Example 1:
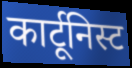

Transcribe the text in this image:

कार्टूनिस्ट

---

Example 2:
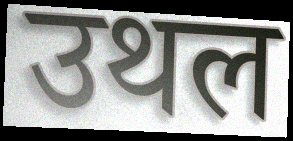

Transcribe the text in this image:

उथल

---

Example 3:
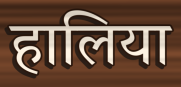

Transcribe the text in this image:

हालिया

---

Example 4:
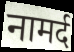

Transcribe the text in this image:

नामर्द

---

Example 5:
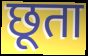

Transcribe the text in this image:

छूता